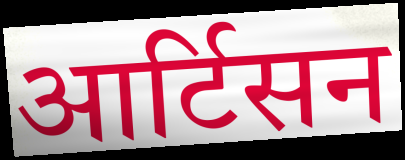
आर्टिसन